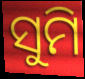
ସୁମି